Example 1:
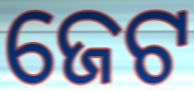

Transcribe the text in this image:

ଜେଟ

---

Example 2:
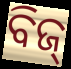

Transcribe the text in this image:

ବିଜ୍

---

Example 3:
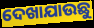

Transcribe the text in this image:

ଦେଖାଯାଉଛୁ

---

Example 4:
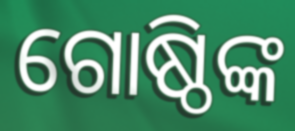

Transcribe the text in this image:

ଗୋଷ୍ଠିଙ୍କ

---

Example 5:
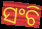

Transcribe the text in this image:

ସଂଚି